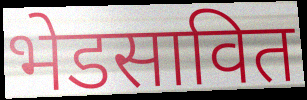
भेडसावित